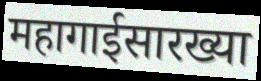
महागाईसारख्या